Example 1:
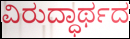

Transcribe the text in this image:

ವಿರುದ್ಧಾರ್ಥದ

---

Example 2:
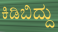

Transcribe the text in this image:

ಕಿಡಿಬಿದ್ದು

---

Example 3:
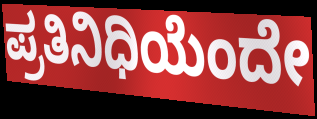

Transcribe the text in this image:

ಪ್ರತಿನಿಧಿಯೆಂದೇ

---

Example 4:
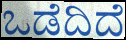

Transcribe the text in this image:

ಒಡೆದಿದೆ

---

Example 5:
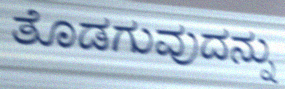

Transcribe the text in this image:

ತೊಡಗುವುದನ್ನು